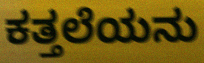
ಕತ್ತಲೆಯನು